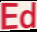
Ed